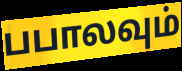
பபாலவும்